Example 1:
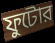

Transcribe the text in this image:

ফুটোর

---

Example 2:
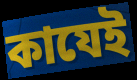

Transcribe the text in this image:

কাযেই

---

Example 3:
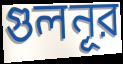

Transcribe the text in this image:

গুলনূর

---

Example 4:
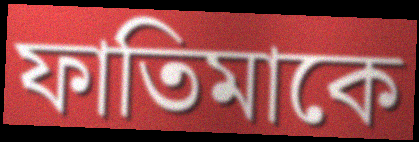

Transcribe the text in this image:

ফাতিমাকে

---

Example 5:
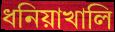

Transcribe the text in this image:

ধনিয়াখালি